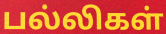
பல்லிகள்